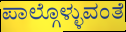
ಪಾಲ್ಗೊಳ್ಳುವಂತೆ